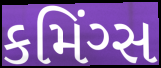
કમિંગ્સ